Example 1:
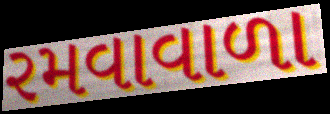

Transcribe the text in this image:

રમવાવાળા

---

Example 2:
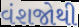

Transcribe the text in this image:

વંશજોથી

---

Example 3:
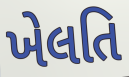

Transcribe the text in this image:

ખેલતિ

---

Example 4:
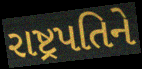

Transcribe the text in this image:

રાષ્ટ્રપતિને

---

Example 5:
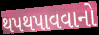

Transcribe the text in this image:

થપથપાવવાનો